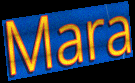
Mara